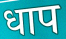
धाप